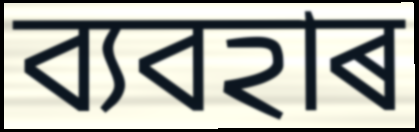
ব্যবহাৰ